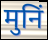
मुनिं